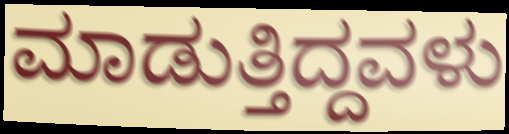
ಮಾಡುತ್ತಿದ್ದವಳು